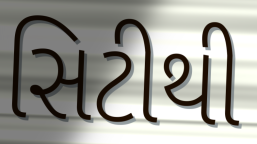
સિટીથી